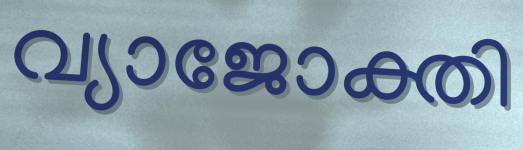
വ്യാജോക്തി